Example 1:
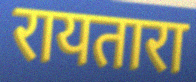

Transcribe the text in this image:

रायतारा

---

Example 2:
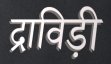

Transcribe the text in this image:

द्राविड़ी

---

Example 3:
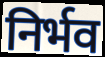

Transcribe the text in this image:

निर्भव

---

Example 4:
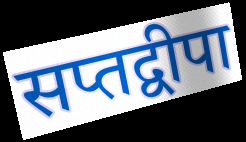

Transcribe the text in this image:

सप्तद्वीपा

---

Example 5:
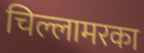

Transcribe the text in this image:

चिल्लामरका